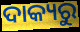
ଦାକ୍ୟରୁ